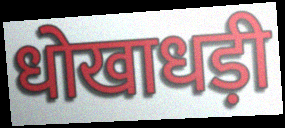
धोखाधड़ी